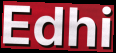
Edhi